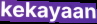
kekayaan